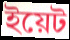
ইয়েট